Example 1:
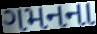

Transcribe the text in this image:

ગમનના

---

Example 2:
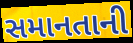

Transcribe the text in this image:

સમાનતાની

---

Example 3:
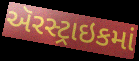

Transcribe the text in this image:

ઍરસ્ટ્રાઇકમાં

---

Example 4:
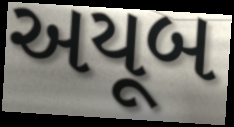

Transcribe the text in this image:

અયૂબ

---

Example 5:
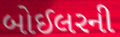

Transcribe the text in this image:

બોઈલરની